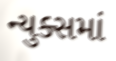
ન્યુક્સમાં